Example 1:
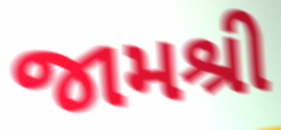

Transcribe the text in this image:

જામશ્રી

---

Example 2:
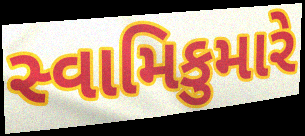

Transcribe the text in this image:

સ્વામિકુમારે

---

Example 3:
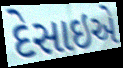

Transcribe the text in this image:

દેસાઇએ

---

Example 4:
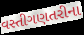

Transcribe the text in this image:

વસ્તીગણતરીના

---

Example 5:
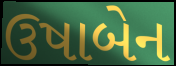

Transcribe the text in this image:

ઉષાબેન